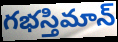
గభస్తిమాన్